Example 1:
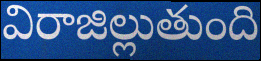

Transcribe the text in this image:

విరాజిల్లుతుంది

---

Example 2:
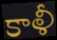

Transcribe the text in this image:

కాళీ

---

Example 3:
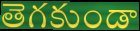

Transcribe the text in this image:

తెగకుండా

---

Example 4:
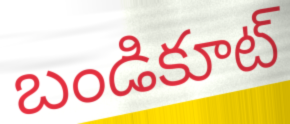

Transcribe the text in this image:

బండికూట్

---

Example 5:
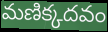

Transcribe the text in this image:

మణిక్కదవం